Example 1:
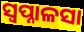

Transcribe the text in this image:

ସ୍ୱପ୍ନାଳସା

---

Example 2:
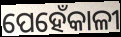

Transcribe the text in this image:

ପେହେଁକାଳୀ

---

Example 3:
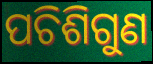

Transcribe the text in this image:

ପଚିଶିଗୁଣ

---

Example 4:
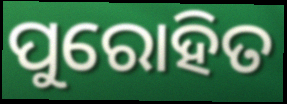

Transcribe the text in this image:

ପୁରୋହିତ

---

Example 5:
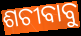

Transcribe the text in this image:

ଶଚୀବାବୁ